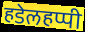
हडेलहप्पी